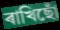
ৰাখিছোঁ